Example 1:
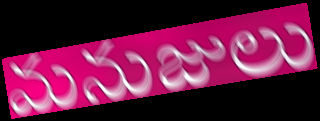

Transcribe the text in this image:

మనుజులు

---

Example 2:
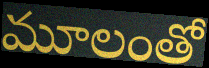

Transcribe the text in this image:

మూలంతో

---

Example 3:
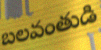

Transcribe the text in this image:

బలవంతుడి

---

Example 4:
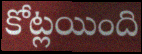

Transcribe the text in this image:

కోట్లయింది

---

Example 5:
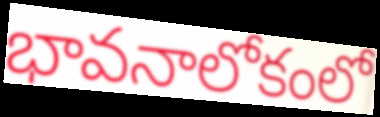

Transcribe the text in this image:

భావనాలోకంలో